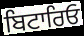
ਬਿਟਾਰਿਓ